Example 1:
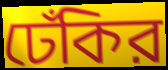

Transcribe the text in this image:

ঢেঁকির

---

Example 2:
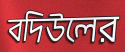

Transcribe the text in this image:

বদিউলের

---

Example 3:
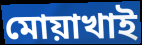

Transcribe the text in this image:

মোয়াখাই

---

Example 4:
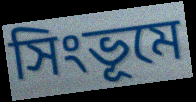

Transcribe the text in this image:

সিংভূমে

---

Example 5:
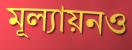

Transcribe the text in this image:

মূল্যায়নও